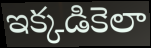
ఇక్కడికెలా